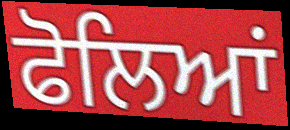
ਫੋਲਿਆਂ